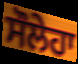
ਸੌਲੇਹਾ